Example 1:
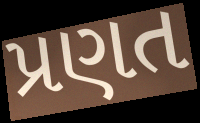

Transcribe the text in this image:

પ્રણત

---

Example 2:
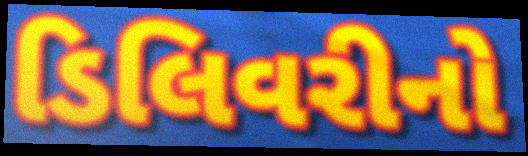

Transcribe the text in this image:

ડિલિવરીનો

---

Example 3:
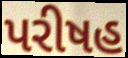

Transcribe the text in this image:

પરીષહ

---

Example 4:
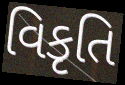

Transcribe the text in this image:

વિકૃતિ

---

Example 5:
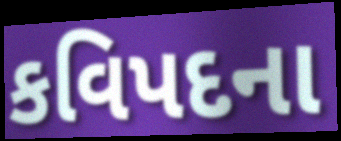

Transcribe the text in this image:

કવિપદના